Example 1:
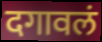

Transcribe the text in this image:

दगावलं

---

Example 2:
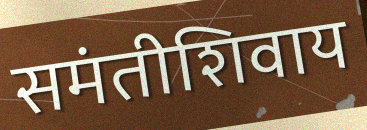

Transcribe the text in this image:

समंतीशिवाय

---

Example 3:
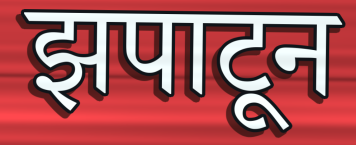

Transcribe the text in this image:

झपाटून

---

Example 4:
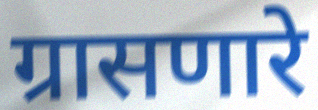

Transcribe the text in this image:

ग्रासणारे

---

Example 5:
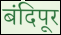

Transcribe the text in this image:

बंदिपूर